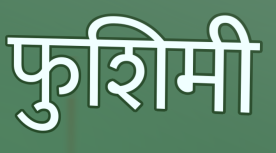
फुशिमी